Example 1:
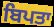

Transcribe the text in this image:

ਬਿਪਤਾ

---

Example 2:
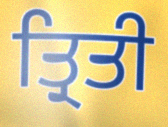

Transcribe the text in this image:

ਤ੍ਰਿਤੀ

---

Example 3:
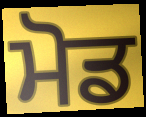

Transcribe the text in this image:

ਮੋਡ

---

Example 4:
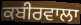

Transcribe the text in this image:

ਕਬੀਰਵਾਲਾ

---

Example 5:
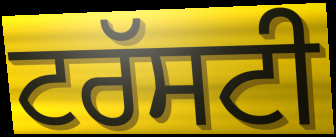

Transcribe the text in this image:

ਟਰੱਸਟੀ